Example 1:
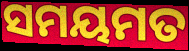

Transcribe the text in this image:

ସମୟମତ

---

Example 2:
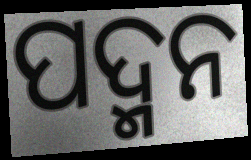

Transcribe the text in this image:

ପଦ୍ମନ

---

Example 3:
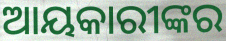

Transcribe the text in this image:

ଆୟକାରୀଙ୍କର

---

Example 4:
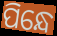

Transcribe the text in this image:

ପିନ୍ଧେ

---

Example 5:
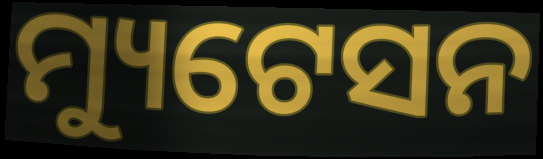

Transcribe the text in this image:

ମ୍ୟୁଟେସନ